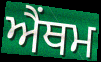
ਐਂਥਮ